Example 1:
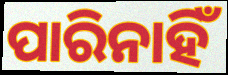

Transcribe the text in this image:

ପାରିନାହିଁ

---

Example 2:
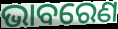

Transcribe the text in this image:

ଭାବରେଣ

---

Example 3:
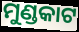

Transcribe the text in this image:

ମୁଣ୍ଡକାଟ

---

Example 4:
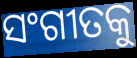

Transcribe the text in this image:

ସଂଗୀତକୁ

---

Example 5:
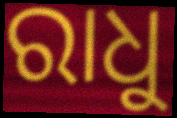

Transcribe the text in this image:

ରାଧୁ